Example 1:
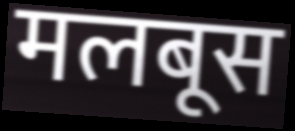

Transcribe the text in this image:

मलबूस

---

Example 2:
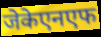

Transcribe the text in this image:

जेकेएनएफ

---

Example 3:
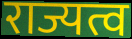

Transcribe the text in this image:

राज्यत्व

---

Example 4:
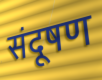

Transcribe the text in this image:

संदूषण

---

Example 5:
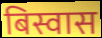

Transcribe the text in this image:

बिस्वास